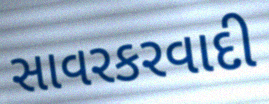
સાવરકરવાદી